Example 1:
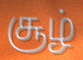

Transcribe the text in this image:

சூழ்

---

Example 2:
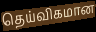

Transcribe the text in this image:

தெய்விகமான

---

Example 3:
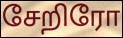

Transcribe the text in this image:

சேறிரோ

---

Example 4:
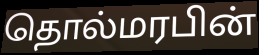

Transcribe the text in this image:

தொல்மரபின்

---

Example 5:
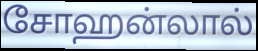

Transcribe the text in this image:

சோஹன்லால்